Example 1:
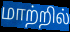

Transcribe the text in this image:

மாற்றில்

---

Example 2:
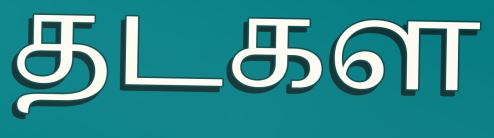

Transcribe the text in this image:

தடகள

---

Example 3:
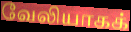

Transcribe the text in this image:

வேலியாகக்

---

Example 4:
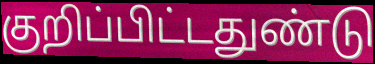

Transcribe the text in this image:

குறிப்பிட்டதுண்டு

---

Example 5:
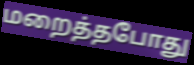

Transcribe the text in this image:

மறைத்தபோது